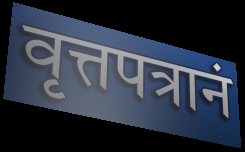
वृत्तपत्रानं